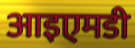
आइएमडी